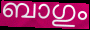
ബാഗും